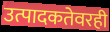
उत्पादकतेवरही